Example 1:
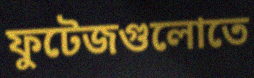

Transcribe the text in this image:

ফুটেজগুলোতে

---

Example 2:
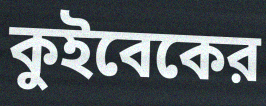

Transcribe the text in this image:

কুইবেকের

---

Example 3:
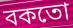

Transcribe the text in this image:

বকতো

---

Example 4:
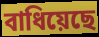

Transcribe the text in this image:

বাধিয়েছে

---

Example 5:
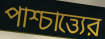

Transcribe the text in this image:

পাশ্চাত্ত্যের